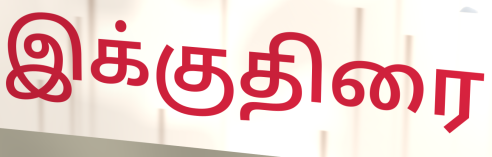
இக்குதிரை